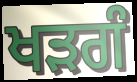
ਖੜਗੰ